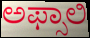
ಅಫ್ಸಾಲಿ